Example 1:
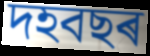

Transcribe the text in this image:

দহবছৰ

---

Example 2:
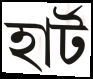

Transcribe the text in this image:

হাৰ্ট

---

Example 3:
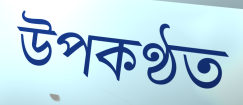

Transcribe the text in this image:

উপকণ্ঠত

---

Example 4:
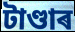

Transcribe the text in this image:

টাণ্ডাৰ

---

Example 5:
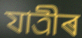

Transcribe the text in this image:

যাত্ৰীৰ